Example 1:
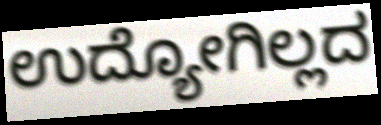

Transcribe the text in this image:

ಉದ್ಯೋಗಿಲ್ಲದ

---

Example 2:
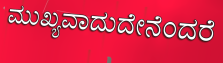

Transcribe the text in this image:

ಮುಖ್ಯವಾದುದೇನೆಂದರೆ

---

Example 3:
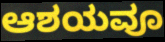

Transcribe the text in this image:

ಆಶಯವೂ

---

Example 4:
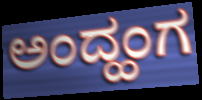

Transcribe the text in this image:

ಅಂದ್ಹಂಗ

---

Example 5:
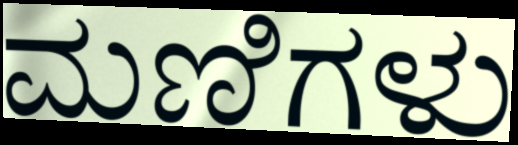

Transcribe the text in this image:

ಮಣಿಗಳು